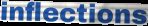
inflections